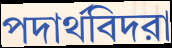
পদার্থবিদরা